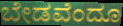
ಬೇಡವೆಂದೂ